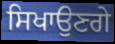
ਸਿਖਾਉਣਗੇ